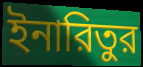
ইনারিতুর